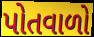
પોતવાળો